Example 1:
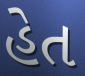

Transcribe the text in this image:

હેત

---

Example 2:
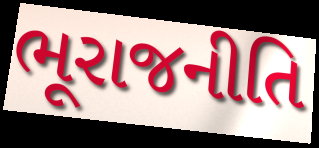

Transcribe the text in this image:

ભૂરાજનીતિ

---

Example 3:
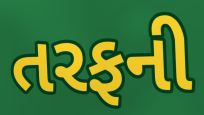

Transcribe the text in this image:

તરફની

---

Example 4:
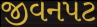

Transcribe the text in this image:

જીવનપટ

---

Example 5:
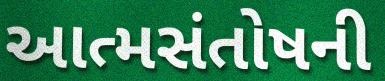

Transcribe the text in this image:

આત્મસંતોષની